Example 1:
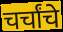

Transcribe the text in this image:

चर्चांचे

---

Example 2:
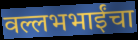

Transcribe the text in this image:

वल्लभभाईंचा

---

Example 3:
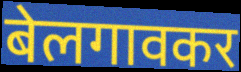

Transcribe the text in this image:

बेलगावकर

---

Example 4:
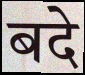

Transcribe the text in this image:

बदे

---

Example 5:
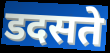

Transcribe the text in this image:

डदसते